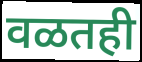
वळतही